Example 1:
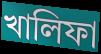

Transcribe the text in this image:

খালিফা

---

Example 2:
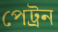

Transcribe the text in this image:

পেট্ৰন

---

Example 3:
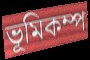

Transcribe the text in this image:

ভূমিকম্প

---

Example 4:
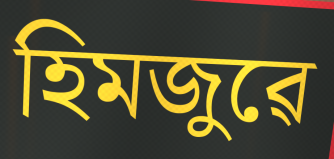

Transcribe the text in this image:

হিমজুৱে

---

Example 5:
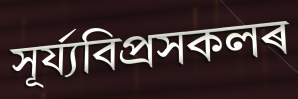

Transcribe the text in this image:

সূৰ্য্যবিপ্ৰসকলৰ